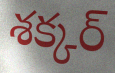
శక్కర్